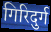
गिरिदुर्ग